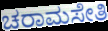
ಚರಾಮಸೇತಿ